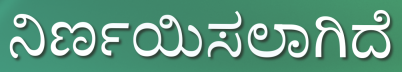
ನಿರ್ಣಯಿಸಲಾಗಿದೆ